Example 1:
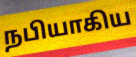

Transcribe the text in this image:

நபியாகிய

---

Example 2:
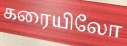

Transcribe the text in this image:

கரையிலோ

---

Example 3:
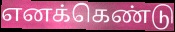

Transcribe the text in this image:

எனக்கெண்டு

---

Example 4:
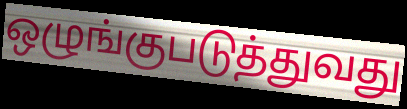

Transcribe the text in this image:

ஒழுங்குபடுத்துவது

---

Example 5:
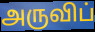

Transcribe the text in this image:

அருவிப்